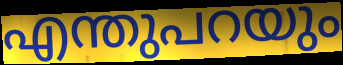
എന്തുപറയും